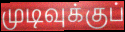
முடிவுக்குப்